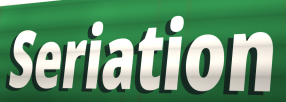
Seriation